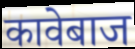
कावेबाज